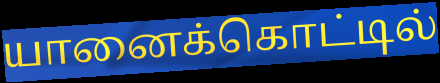
யானைக்கொட்டில்